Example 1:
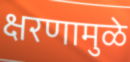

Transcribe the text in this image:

क्षरणामुळे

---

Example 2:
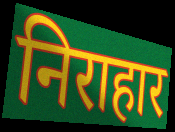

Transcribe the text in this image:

निराहार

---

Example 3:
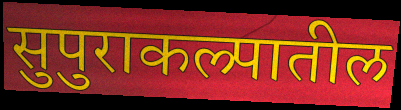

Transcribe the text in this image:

सुपुराकल्पातील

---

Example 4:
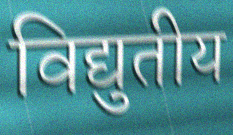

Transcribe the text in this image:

विद्युतीय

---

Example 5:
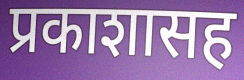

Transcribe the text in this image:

प्रकाशासह